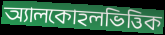
অ্যালকোহলভিত্তিক